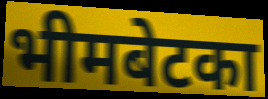
भीमबेटका